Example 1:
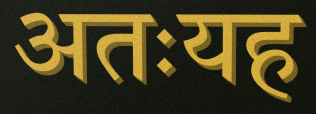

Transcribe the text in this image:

अतःयह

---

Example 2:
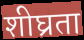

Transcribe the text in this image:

शीघ्रता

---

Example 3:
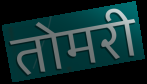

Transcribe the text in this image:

तोमरी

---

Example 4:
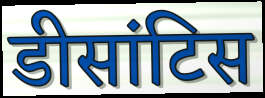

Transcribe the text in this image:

डीसांटिस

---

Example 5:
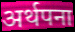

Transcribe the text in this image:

अर्थपना